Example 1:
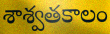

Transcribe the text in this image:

శాశ్వతకాలం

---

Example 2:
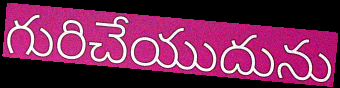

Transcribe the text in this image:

గురిచేయుదును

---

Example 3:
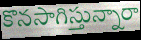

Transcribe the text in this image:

కొనసాగిస్తున్నారా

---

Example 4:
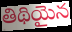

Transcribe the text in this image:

తిథియైన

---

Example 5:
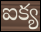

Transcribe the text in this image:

ఐక్య